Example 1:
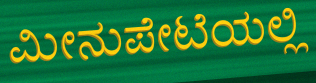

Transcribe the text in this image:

ಮೀನುಪೇಟೆಯಲ್ಲಿ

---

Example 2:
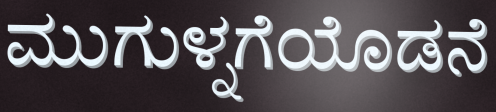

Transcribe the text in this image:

ಮುಗುಳ್ನಗೆಯೊಡನೆ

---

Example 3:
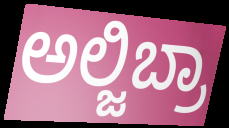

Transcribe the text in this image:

ಅಲ್ಜಿಬ್ರಾ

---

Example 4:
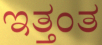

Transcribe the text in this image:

ಇತ್ತಂತ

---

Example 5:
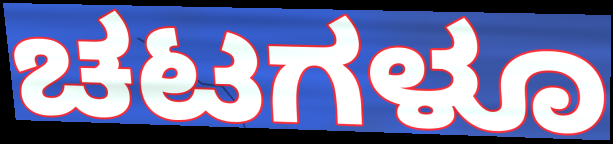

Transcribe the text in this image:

ಚಟಗಳೂ